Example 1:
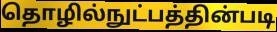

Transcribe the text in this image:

தொழில்நுட்பத்தின்படி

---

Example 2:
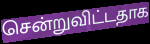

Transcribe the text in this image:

சென்றுவிட்டதாக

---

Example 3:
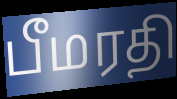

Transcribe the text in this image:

பீமரதி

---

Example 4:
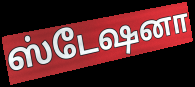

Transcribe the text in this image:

ஸ்டேஷனா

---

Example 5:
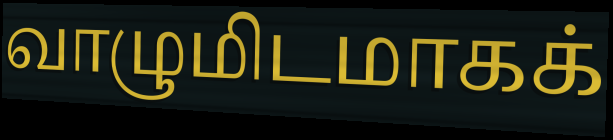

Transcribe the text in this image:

வாழுமிடமாகக்